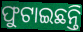
ଫୁଟାଇଛନ୍ତି